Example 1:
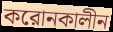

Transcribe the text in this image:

করোনকালীন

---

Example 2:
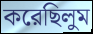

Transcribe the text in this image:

করেছিলুম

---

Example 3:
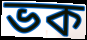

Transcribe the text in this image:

ভক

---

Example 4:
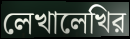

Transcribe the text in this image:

লেখালেখির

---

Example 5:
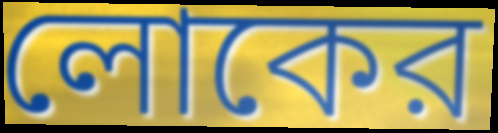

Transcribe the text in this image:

লোকের